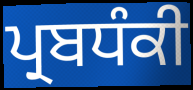
ਪ੍ਰਬਧੰਕੀ